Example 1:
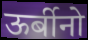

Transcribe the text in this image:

ऊर्बीनो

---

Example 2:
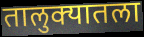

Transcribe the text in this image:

तालुक्यातला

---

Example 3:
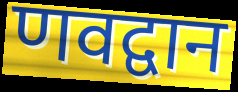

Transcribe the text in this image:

णवद्वान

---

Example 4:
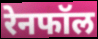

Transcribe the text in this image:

रेनफॉल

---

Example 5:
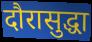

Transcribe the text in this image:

दौरासुद्धा